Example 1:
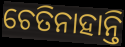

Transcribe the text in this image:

ଚେତିନାହାନ୍ତି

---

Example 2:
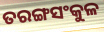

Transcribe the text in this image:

ତରଙ୍ଗସଂକୁଳ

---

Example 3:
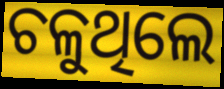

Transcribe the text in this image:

ଚଳୁଥିଲେ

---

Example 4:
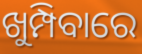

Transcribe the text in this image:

ଖୁମ୍ପିବାରେ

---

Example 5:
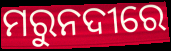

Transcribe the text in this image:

ମରୁନଦୀରେ